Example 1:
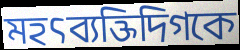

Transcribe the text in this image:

মহৎব্যক্তিদিগকে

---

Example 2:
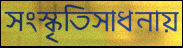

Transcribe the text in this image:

সংস্কৃতিসাধনায়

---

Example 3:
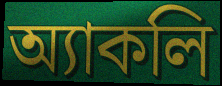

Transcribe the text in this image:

অ্যাকলি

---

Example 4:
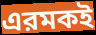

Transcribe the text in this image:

এরমকই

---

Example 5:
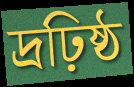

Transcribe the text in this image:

দ্রঢ়িষ্ঠ